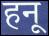
हनू